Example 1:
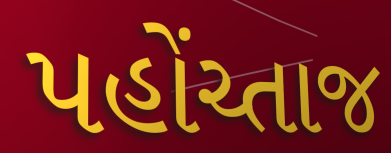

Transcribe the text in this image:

પહોંચ્તાજ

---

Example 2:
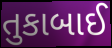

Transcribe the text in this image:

તુકાબાઈ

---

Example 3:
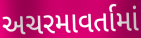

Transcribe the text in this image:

અચરમાવર્તામાં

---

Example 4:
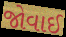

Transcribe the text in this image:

જોવાઈ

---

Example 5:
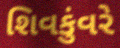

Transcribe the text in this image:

શિવકુંવરે